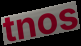
tnos